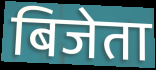
बिजेता